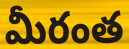
మీరంత